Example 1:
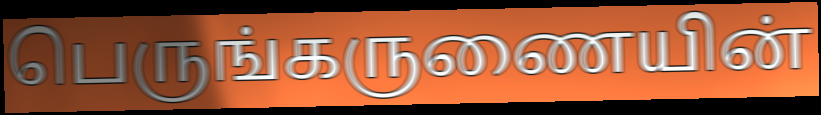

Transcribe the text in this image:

பெருங்கருணையின்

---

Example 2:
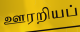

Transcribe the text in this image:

ஊரறியப்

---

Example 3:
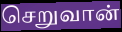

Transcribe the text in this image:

செறுவான்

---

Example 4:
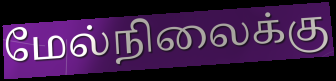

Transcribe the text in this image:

மேல்நிலைக்கு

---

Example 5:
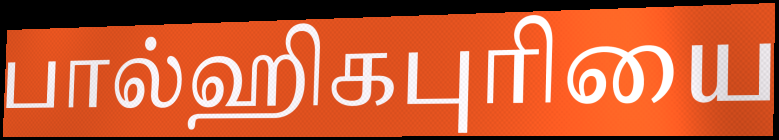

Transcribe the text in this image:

பால்ஹிகபுரியை